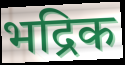
भद्रिक